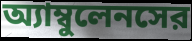
অ্যাম্বুলেনসের